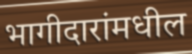
भागीदारांमधील